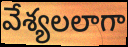
వేశ్యలలాగా